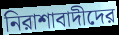
নিরাশাবাদীদের